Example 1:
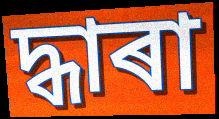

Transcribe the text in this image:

দ্ধাৰা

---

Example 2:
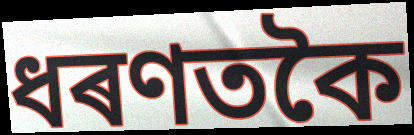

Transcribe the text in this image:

ধৰণতকৈ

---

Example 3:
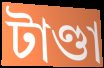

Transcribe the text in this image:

টাণ্ডা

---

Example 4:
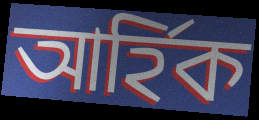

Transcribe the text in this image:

আৰ্হিক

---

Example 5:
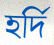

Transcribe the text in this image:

হৰ্দি